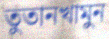
তুতানখামুন